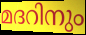
മദറിനും